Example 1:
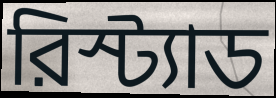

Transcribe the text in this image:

রিস্ট্যাড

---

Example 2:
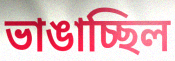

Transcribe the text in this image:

ভাঙাচ্ছিল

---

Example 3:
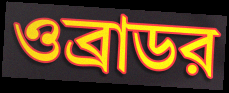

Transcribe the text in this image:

ওব্রাডর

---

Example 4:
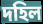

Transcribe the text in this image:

দহিল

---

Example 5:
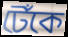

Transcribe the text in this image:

টেঁকে